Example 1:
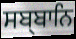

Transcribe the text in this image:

ਸਬ੍ਬਾਨਿ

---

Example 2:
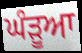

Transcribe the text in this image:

ਘੰੜੂਆ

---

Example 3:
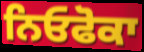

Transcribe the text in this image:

ਨਿਓਫੋਕਾ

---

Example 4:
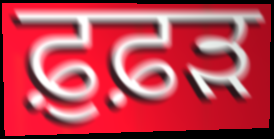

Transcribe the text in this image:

ਫ਼ੁਫ਼ੜ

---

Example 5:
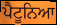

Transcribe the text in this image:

ਪੈਟੂਨਿਆ